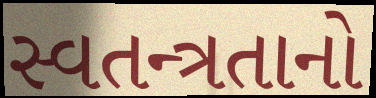
સ્વતન્ત્રતાનો